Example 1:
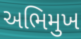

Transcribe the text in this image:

અભિમુખ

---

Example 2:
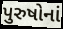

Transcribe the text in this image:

પુરુષોનાં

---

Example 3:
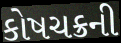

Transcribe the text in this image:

કોષચક્રની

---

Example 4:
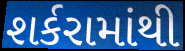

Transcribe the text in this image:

શર્કરામાંથી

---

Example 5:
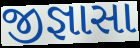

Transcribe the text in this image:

જીજ્ઞાસા